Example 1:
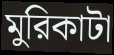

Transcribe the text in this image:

মুরিকাটা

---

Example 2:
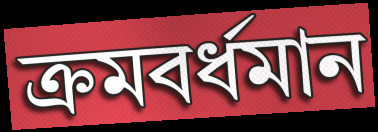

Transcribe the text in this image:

ক্রমবর্ধমান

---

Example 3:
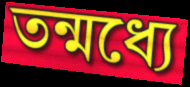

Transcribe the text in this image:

তন্মধ্যে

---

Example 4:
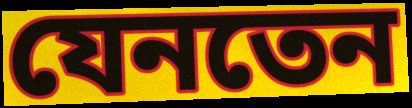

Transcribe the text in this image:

যেনতেন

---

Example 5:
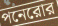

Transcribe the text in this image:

পনেরোর